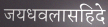
जयधवलासहिदे